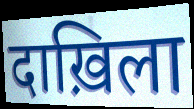
दाख़िला